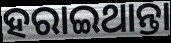
ହରାଇଥାନ୍ତା